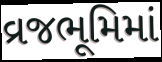
વ્રજભૂમિમાં